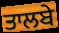
ਤਾਲਬੇ